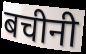
बचीनी